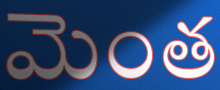
మెంత